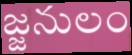
జ్జనులం